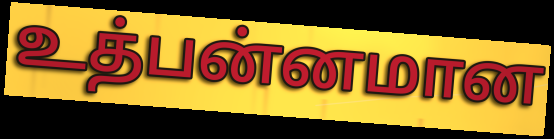
உத்பன்னமான